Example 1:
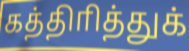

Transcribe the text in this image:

கத்திரித்துக்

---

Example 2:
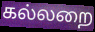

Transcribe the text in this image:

கல்லறை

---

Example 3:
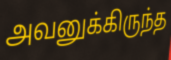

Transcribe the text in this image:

அவனுக்கிருந்த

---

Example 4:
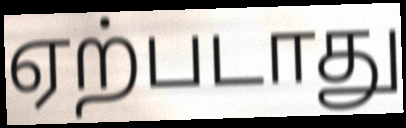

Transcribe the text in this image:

ஏற்படாது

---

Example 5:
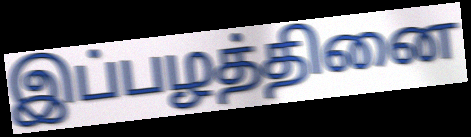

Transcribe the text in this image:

இப்பழத்தினை